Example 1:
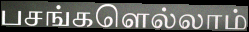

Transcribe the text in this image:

பசங்களெல்லாம்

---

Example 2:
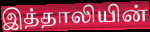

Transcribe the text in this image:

இத்தாலியின்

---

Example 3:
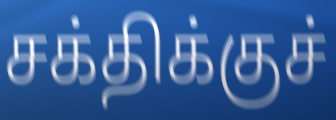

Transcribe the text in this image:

சக்திக்குச்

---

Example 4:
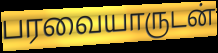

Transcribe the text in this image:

பரவையாருடன்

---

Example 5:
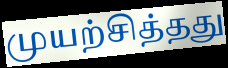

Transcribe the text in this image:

முயற்சித்தது